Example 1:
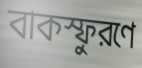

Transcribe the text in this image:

বাকস্ফুরণে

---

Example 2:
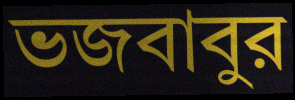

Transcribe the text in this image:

ভজবাবুর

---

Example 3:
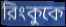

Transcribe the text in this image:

রিংকুকে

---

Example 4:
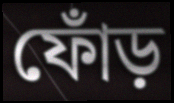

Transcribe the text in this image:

ফোঁড়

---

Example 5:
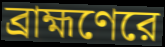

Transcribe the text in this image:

ব্রাহ্মণেরে